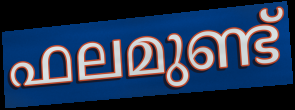
ഫലമുണ്ട്